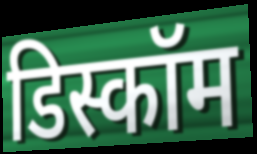
डिस्कॉम